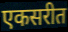
एकसरीत